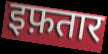
इफ़तार